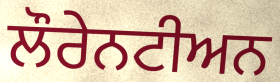
ਲੌਰੇਨਟੀਅਨ